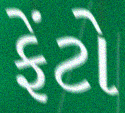
ફેંટો